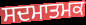
ਸਦਮਾਤਮਕ